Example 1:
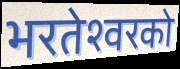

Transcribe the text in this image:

भरतेश्वरको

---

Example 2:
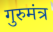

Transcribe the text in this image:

गुरुमंत्र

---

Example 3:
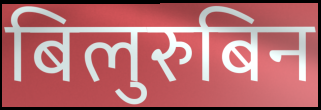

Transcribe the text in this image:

बिलुरुबिन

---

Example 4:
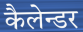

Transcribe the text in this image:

कैलेन्डर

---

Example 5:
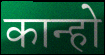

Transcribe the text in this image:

कान्हो